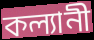
কল্যানী